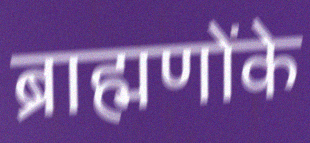
ब्राह्मणोंके